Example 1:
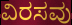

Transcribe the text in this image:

ವಿರಸವು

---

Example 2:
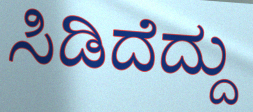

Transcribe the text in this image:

ಸಿಡಿದೆದ್ದು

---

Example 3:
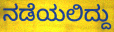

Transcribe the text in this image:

ನಡೆಯಲಿದ್ದು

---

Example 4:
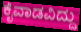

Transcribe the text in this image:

ಕೈವಾಡವಿದ್ದು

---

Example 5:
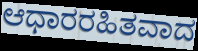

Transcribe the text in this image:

ಆಧಾರರಹಿತವಾದ